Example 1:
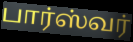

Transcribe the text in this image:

பார்ஸ்வர்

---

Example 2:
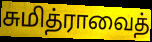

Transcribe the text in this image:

சுமித்ராவைத்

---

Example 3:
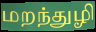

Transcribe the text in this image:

மறந்துழி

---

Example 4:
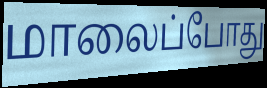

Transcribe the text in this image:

மாலைப்போது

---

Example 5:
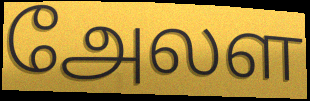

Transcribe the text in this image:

அேலள